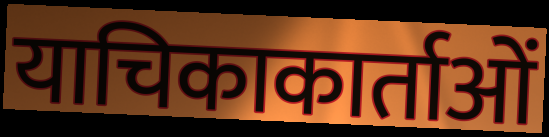
याचिकाकार्ताओं